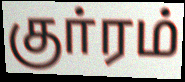
குர்ரம்